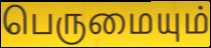
பெருமையும்